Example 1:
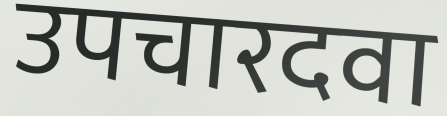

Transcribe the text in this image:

उपचारदवा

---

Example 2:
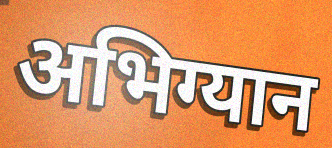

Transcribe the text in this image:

अभिग्यान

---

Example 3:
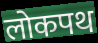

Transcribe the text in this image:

लोकपथ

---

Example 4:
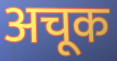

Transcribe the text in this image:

अचूक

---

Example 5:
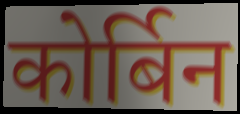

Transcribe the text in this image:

कोर्बिन